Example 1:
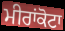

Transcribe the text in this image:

ਮੀਰਾਂਕੋਟਾ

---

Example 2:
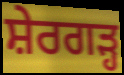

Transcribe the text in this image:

ਸ਼ੇਰਗੜ੍ਹ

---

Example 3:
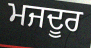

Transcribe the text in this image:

ਮਜਦੂਰ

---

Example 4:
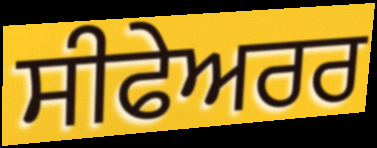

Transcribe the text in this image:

ਸੀਫੇਅਰਰ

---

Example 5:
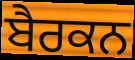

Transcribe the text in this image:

ਬੈਰਕਨ